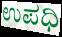
ಉಪಧಿ